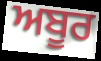
ਅਬੂਰ